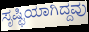
ಸೃಷ್ಟಿಯಾಗಿದ್ದವು